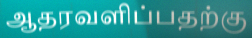
ஆதரவளிப்பதற்கு